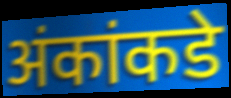
अंकांकडे